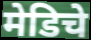
मेडिचे